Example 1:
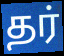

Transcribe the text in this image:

தர்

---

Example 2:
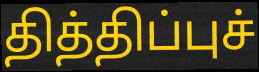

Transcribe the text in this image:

தித்திப்புச்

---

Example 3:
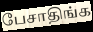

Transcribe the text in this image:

பேசாதிங்க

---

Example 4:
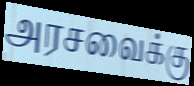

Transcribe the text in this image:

அரசவைக்கு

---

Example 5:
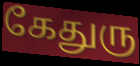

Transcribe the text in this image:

கேதுரு